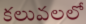
కలువలలో